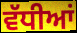
ਵੱਧੀਆਂ